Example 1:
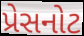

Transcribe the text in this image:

પ્રેસનોટ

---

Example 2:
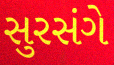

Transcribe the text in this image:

સુરસંગે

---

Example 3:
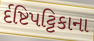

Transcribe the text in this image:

ર્દષ્ટિપટ્ટિકાના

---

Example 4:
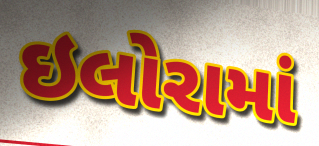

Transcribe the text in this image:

ઇલોરામાં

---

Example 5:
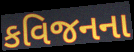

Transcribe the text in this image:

કવિજનના